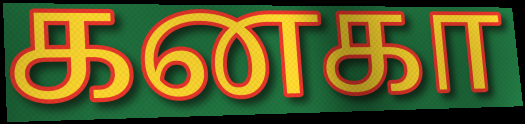
கனகா